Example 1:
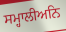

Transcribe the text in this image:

ਸਮ੍ਹਾਲੀਅਨਿ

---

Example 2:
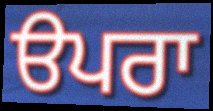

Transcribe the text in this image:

ੳਪਰਾ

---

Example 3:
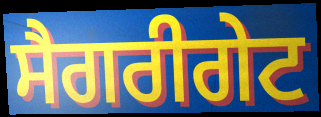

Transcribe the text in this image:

ਸੈਗਰੀਗੇਟ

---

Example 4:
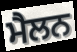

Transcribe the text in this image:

ਮੈਲਨ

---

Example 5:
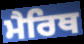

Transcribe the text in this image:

ਮੈਰਿਥ